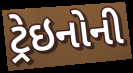
ટ્રેઇનોની